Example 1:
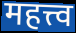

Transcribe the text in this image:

महत्त्व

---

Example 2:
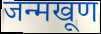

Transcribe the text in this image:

जन्मखूण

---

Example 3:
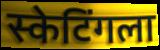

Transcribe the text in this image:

स्केटिंगला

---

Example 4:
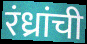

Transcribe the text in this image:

रंध्रांची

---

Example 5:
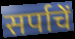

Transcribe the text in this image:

सर्पाचें